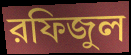
রফিজুল